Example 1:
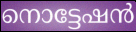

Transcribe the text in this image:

നൊട്ടേഷൻ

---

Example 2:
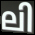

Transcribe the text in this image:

ലി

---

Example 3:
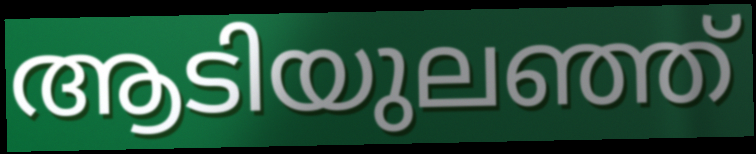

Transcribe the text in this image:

ആടിയുലഞ്ഞ്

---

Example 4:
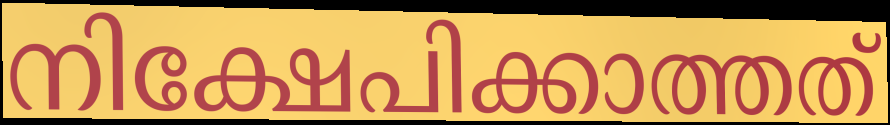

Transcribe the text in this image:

നിക്ഷേപിക്കാത്തത്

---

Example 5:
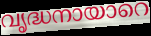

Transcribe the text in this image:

വൃദ്ധനായാറെ